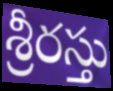
శ్రీరస్తు